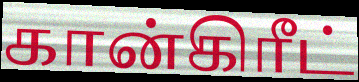
கான்கிரீட்